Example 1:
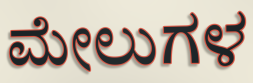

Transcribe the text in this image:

ಮೇಲುಗಳ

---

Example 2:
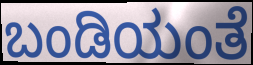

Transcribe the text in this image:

ಬಂಡಿಯಂತೆ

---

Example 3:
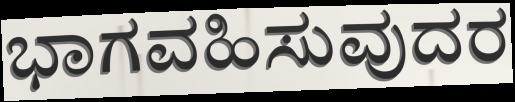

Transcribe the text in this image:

ಭಾಗವಹಿಸುವುದರ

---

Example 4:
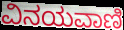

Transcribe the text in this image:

ವಿನಯವಾಣಿ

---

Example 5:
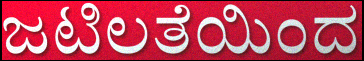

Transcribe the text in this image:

ಜಟಿಲತೆಯಿಂದ